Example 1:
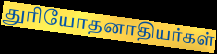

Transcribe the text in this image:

துரியோதனாதியர்கள்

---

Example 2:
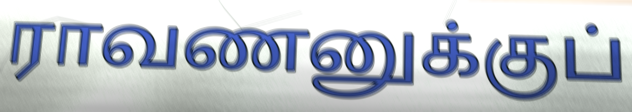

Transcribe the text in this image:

ராவணனுக்குப்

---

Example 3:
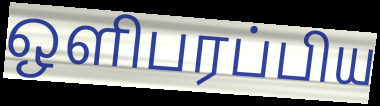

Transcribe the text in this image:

ஒளிபரப்பிய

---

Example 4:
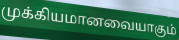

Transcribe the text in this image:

முக்கியமானவையாகும்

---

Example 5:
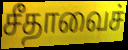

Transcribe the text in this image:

சீதாவைச்